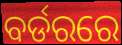
ବର୍ଡରରେ